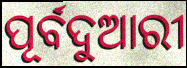
ପୂର୍ବଦୁଆରୀ